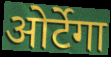
ओर्टेगा